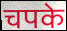
चपके